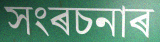
সংৰচনাৰ